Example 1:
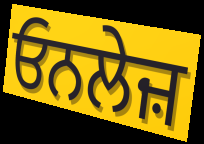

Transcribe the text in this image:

ਓਨਲੇਜ਼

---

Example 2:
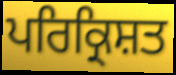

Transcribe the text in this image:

ਪਰਿਕ੍ਰਿਸ਼ਤ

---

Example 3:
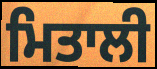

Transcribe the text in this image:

ਮਿਤਾਲੀ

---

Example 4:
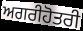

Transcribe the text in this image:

ਅਗਰੀਹੋਤਰੀ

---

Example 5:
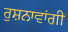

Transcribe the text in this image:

ਰੁਸ਼ਨਾਵਾਂਗੀ